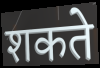
शकते